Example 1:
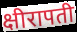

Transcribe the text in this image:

क्षीरापती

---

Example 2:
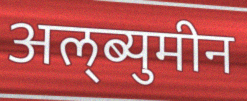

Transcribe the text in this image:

अल्ब्युमीन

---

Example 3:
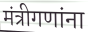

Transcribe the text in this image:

मंत्रीगणांना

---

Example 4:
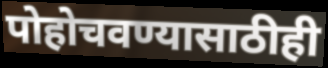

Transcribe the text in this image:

पोहोचवण्यासाठीही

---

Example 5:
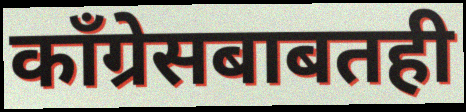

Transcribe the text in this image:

काँग्रेसबाबतही